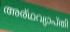
അര്ഥവ്യാപ്തി